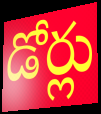
డోర్లు